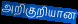
அறிகுறியான